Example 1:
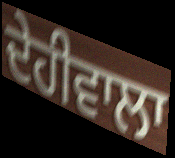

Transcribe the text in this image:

ਦੇਹੀਵਾਲਾ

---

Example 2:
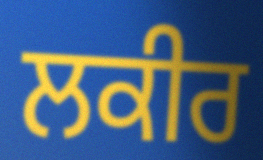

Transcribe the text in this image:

ਲਕੀਰ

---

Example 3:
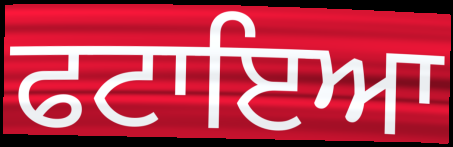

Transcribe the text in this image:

ਫਟਾਇਆ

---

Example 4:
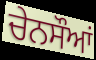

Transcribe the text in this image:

ਚੇਨਸੌਆਂ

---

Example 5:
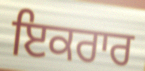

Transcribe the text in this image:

ਇਕਰਾਰ